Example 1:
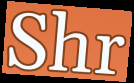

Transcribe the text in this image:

Shr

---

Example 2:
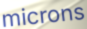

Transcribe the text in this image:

microns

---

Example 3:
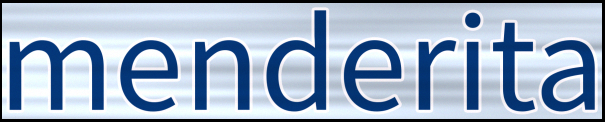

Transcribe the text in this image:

menderita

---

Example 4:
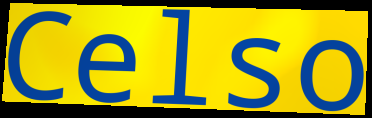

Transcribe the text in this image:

Celso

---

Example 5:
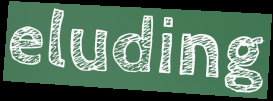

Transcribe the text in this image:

eluding